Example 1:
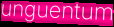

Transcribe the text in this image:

unguentum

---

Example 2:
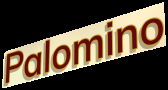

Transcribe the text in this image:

Palomino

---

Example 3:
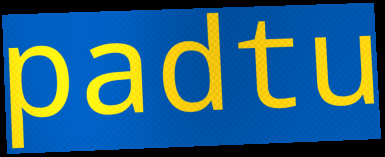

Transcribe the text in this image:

padtu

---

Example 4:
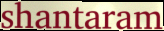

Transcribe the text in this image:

shantaram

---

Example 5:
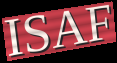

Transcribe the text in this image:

ISAF